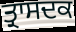
ਤ੍ਰਾਸਦਕ